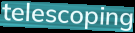
telescoping